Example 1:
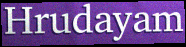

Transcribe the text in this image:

Hrudayam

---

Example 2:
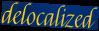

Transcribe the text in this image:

delocalized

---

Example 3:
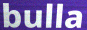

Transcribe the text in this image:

bulla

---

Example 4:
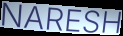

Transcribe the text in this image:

NARESH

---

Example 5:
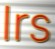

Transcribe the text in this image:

Irs